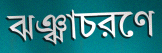
ঝঞ্ঝাচরণে